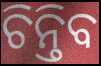
ଚିନ୍ତିବ